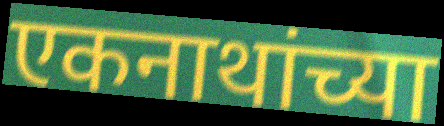
एकनाथांच्या